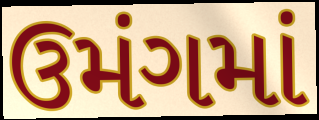
ઉમંગમાં